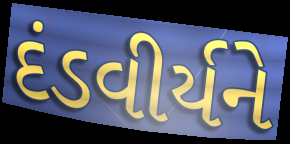
દંડવીર્યને